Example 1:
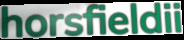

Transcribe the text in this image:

horsfieldii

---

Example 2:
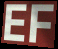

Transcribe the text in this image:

EF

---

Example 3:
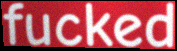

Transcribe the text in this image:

fucked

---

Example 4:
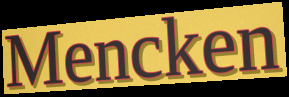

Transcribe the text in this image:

Mencken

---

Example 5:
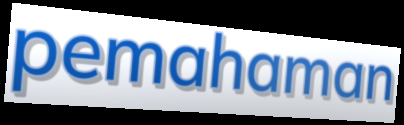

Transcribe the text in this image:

pemahaman